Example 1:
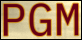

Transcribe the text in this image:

PGM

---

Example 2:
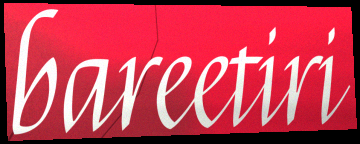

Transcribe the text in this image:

bareetiri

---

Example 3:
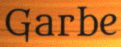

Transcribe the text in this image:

Garbe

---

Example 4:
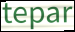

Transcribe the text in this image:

tepar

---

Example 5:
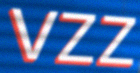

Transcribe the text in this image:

vzz